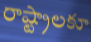
రాష్ట్రాలకూ